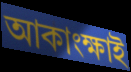
আকাংক্ষাই